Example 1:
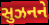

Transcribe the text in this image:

સુઝનને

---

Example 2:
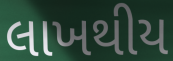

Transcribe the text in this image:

લાખથીય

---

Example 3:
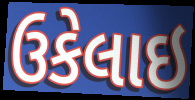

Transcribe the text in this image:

ઉકેલાઇ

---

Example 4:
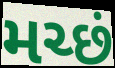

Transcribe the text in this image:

મચ્છં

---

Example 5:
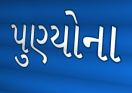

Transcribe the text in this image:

પુણ્યોના